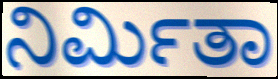
ನಿರ್ಮಿತಾ